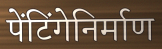
पेंटिंगेनिर्माण